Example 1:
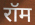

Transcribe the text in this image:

रॉम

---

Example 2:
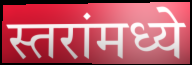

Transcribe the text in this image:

स्तरांमध्ये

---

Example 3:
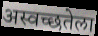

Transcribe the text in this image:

अस्वच्छतेला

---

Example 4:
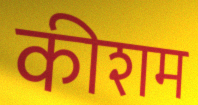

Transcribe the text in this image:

कीशम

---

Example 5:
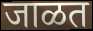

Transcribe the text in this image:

जाळत